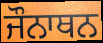
ਜੌਨਾਥਨ